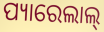
ପ୍ୟାରେଲାଲ୍